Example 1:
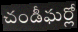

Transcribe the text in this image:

చండీఘర్లో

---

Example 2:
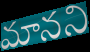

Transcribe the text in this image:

మానని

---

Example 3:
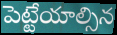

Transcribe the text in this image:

పెట్టేయాల్సిన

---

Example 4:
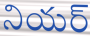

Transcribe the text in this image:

నియర్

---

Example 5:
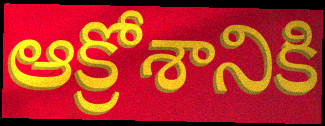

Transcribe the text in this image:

ఆక్రోశానికి